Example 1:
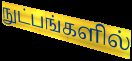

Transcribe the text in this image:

நுட்பங்களில்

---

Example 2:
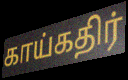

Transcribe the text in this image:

காய்கதிர்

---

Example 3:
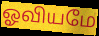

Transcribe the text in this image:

ஓவியமே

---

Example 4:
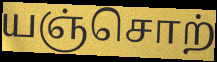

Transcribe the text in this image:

யஞ்சொற்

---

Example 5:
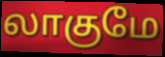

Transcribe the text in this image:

லாகுமே